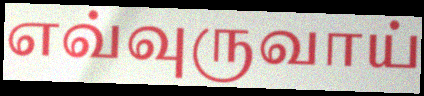
எவ்வுருவாய்